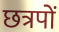
छत्रपों